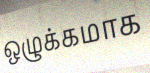
ஒழுக்கமாக